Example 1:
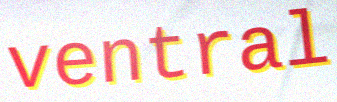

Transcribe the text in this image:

ventral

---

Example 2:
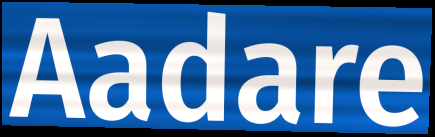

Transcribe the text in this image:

Aadare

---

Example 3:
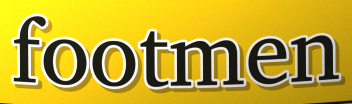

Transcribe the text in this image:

footmen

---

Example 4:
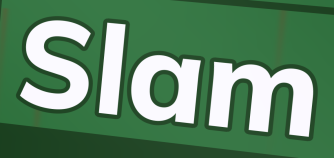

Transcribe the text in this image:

Slam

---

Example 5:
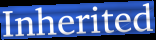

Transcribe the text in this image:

Inherited